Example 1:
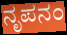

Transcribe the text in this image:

ನೃಪನಂ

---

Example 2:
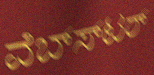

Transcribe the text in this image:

ವೆಬ್ಸ್‍ಟರ್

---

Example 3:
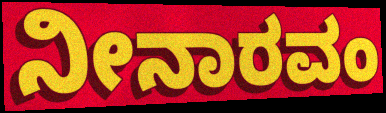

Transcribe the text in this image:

ನೀನಾರವಂ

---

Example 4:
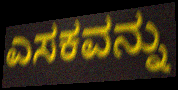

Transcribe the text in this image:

ಎಸಕವನ್ನು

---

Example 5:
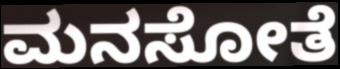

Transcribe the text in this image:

ಮನಸೋತೆ